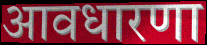
आवधारणा